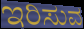
ಇರಿಸುವ